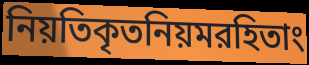
নিয়তিকৃতনিয়মরহিতাং